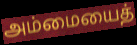
அம்மையைத்